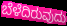
ಬೆಳೆದಿರುವುದು